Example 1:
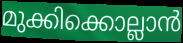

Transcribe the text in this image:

മുക്കിക്കൊല്ലാൻ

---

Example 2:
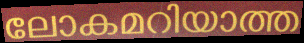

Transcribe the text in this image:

ലോകമറിയാത്ത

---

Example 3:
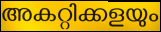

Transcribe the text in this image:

അകറ്റിക്കളയും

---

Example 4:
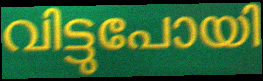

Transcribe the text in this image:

വിട്ടുപോയി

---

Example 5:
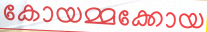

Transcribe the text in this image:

കോയമ്മക്കോയ